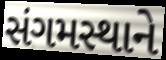
સંગમસ્થાને